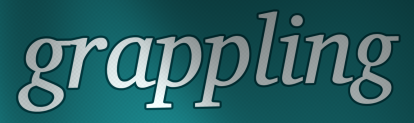
grappling